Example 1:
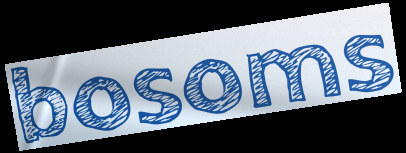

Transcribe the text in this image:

bosoms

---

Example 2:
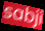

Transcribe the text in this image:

sabji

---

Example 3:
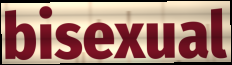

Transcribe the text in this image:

bisexual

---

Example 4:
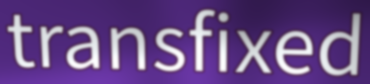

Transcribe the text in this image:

transfixed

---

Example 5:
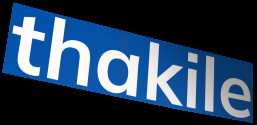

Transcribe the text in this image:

thakile